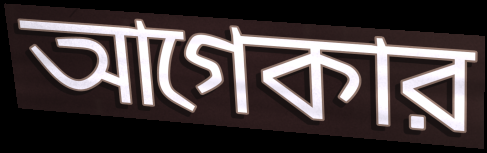
আগেকার